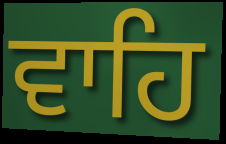
ਵਾਹਿ